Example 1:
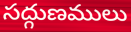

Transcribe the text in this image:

సద్గుణములు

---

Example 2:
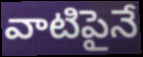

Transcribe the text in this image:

వాటిపైనే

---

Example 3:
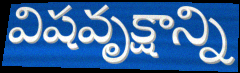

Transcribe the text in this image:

విషవృక్షాన్ని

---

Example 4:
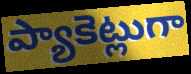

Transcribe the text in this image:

ప్యాకెట్లుగా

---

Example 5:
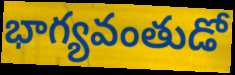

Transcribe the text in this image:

భాగ్యవంతుడో